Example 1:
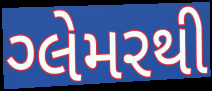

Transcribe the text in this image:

ગ્લેમરથી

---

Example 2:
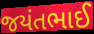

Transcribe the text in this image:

જયંતભાઈ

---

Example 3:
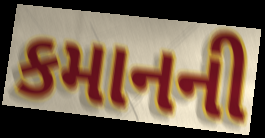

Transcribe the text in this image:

કમાનની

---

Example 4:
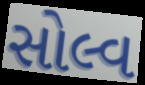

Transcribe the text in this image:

સોલ્વ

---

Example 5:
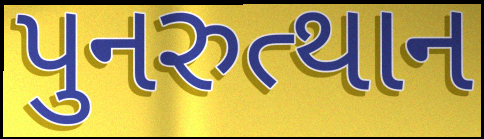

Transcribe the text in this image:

પુનરુત્થાન